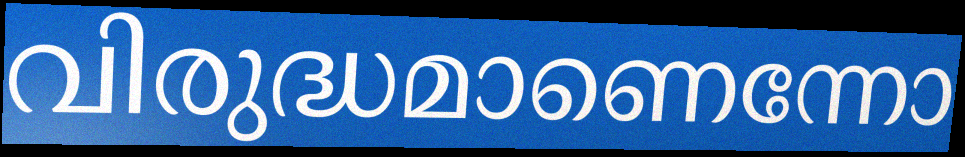
വിരുദ്ധമാണെന്നോ